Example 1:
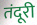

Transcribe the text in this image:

तंदूरी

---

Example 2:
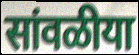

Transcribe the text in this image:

सांवळीया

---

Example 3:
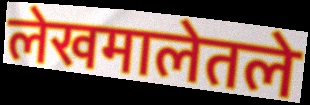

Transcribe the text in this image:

लेखमालेतले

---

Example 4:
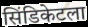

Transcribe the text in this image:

सिंडिकेटला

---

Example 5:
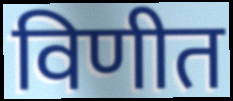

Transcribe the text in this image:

विणीत